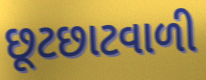
છૂટછાટવાળી